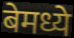
बेमध्ये